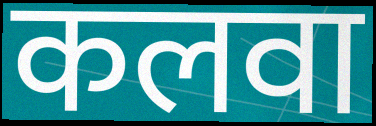
कलवा